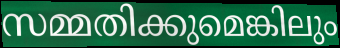
സമ്മതിക്കുമെങ്കിലും